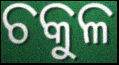
ଚକୁଳ